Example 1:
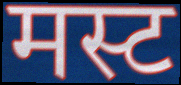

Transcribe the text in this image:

मस्ट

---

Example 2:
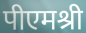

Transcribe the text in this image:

पीएमश्री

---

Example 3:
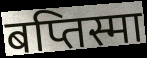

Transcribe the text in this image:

बप्तिस्मा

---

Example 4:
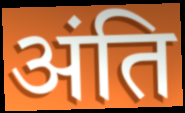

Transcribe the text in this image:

अंति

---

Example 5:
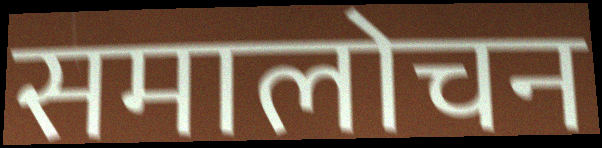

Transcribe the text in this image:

समालोचन